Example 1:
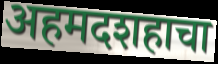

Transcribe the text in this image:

अहमदशहाचा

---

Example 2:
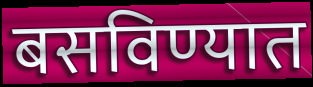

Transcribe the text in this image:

बसविण्यात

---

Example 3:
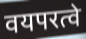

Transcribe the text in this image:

वयपरत्वे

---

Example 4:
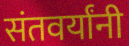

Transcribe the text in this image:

संतवर्यांनी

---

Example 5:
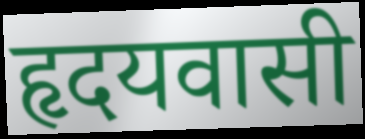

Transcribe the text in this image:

हृदयवासी